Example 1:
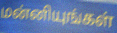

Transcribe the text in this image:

மன்னியுங்கள்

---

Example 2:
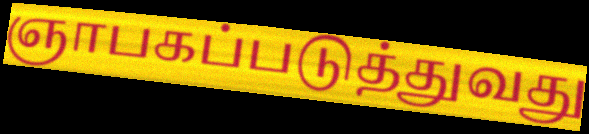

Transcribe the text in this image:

ஞாபகப்படுத்துவது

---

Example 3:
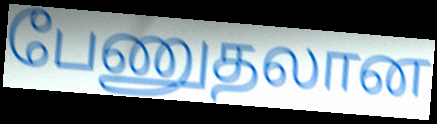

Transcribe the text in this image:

பேணுதலான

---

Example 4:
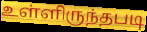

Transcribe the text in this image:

உள்ளிருந்தபடி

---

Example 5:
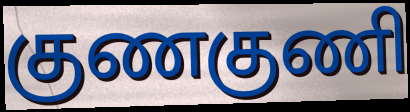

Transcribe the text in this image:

குணகுணி